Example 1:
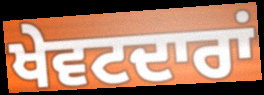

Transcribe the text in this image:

ਖੇਵਟਦਾਰਾਂ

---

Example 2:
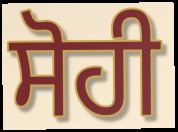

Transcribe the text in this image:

ਸੋਹੀ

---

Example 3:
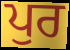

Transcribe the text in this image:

ਪੁਰ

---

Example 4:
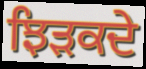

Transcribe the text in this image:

ਝਿੜਕਦੇ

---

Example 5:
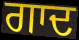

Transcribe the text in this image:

ਗਾਦ